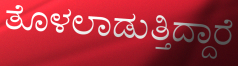
ತೊಳಲಾಡುತ್ತಿದ್ದಾರೆ